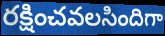
రక్షించవలసిందిగా